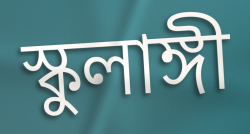
স্কুলাঙ্গী